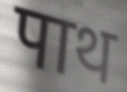
पाथ